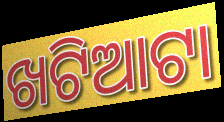
ଖଟିଆଟା